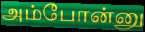
அம்போன்னு